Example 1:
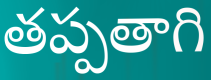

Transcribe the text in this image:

తప్పతాగి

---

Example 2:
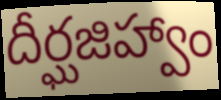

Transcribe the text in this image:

దీర్ఘజిహ్వాం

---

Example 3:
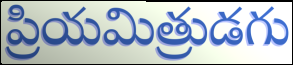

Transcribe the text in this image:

ప్రియమిత్రుడగు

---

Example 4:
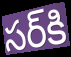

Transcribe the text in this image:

సర్‌కి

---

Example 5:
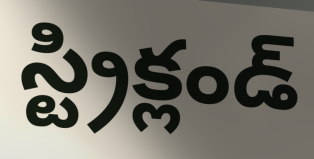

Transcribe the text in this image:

స్ట్రిక్లండ్